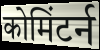
कोमिंटर्न